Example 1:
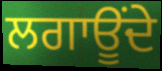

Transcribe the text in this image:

ਲਗਾਊਂਦੇ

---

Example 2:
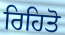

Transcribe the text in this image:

ਰਿਹਿਤੋ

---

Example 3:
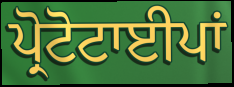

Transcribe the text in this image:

ਪ੍ਰੋਟੋਟਾਈਪਾਂ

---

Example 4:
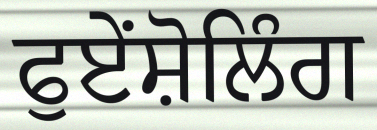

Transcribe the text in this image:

ਫੁਏਂਸ਼ੋਲਿੰਗ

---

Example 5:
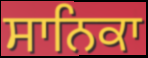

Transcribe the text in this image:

ਸਾਨਿਕਾ